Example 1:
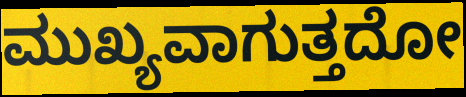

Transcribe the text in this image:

ಮುಖ್ಯವಾಗುತ್ತದೋ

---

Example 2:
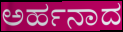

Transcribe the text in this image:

ಅರ್ಹನಾದ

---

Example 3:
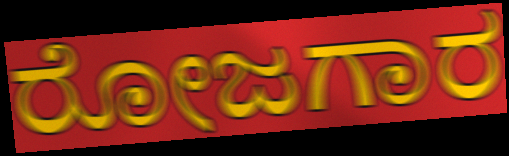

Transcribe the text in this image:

ರೋಜಗಾರ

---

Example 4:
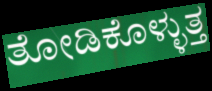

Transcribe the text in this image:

ತೋಡಿಕೊಳ್ಳುತ್ತ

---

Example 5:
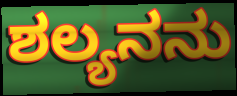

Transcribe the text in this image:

ಶಲ್ಯನನು